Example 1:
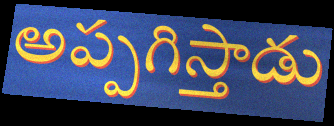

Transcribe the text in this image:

అప్పగిస్తాడు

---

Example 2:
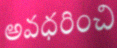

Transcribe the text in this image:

అవధరించి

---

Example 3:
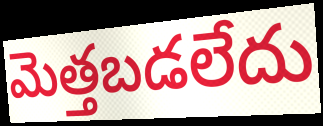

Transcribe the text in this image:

మెత్తబడలేదు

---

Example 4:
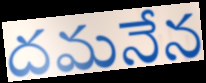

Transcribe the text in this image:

దమనేన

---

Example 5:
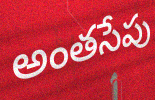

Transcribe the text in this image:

అంతసేపు